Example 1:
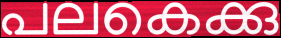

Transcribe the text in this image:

പലകെക്കു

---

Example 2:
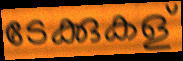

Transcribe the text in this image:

ടേക്കുകള്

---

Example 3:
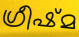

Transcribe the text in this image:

ഗ്രീഷ്മ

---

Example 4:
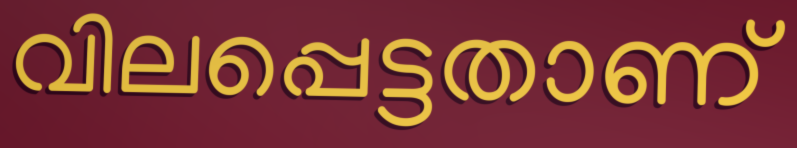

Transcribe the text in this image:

വിലപ്പെട്ടതാണ്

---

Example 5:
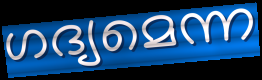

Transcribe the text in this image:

ഗദ്യമെന്ന